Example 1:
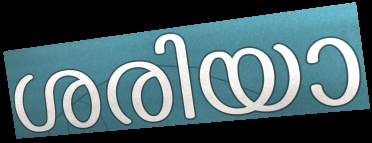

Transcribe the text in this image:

ശരിയാ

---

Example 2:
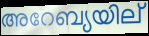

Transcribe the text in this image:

അറേബ്യയില്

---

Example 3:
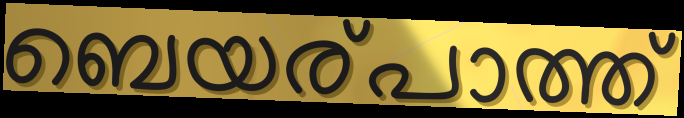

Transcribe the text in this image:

ബെയര്പാത്ത്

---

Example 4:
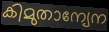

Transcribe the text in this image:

കിമുതാന്യേന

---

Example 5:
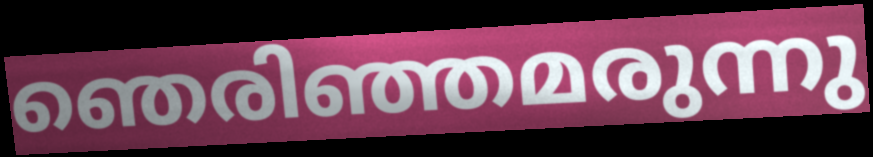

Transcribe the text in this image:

ഞെരിഞ്ഞമരുന്നു